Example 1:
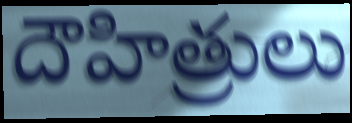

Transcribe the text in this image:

దౌహిత్రులు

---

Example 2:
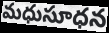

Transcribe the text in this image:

మధుసూధన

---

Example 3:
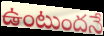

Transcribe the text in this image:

ఉంటుందనే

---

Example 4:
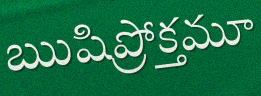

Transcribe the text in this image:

ఋషిప్రోక్తమూ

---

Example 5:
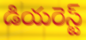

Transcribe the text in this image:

డియరెస్ట్